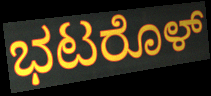
ಭಟರೊಳ್